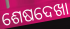
ଶେଷଦେଖା